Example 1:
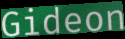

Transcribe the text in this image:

Gideon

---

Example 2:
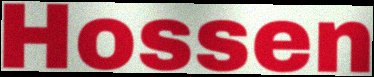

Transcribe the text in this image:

Hossen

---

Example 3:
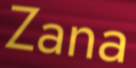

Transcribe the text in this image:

Zana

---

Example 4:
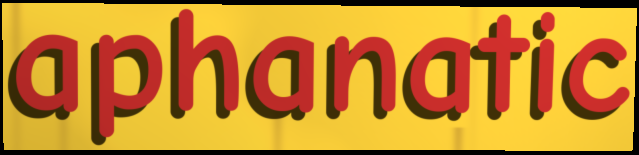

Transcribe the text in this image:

aphanatic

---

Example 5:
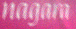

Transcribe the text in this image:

nagara